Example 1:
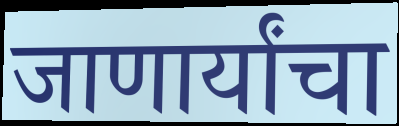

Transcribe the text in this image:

जाणार्यांचा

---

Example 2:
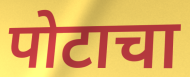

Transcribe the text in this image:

पोटाचा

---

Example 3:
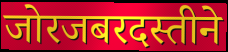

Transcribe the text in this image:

जोरजबरदस्तीने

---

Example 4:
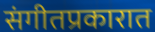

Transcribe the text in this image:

संगीतप्रकारात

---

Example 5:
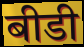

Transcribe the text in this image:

बीडी